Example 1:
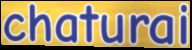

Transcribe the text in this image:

chaturai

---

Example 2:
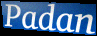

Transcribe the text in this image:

Padan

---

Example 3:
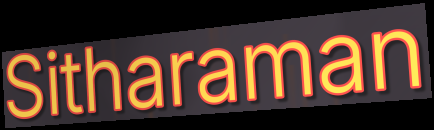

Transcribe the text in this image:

Sitharaman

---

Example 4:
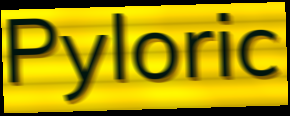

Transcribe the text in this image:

Pyloric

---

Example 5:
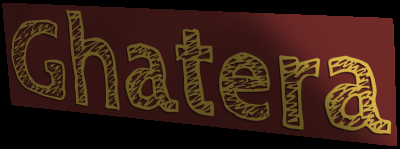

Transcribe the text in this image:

Ghatera